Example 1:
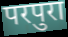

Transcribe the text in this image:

परपुरा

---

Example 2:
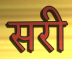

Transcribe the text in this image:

सरी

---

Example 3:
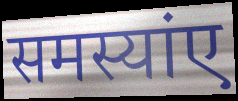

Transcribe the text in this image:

समस्यांए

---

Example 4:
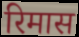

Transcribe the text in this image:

रिमास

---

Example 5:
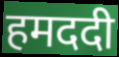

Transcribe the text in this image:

हमददी